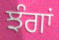
ਝੰਗਾਂ